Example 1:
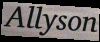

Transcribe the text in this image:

Allyson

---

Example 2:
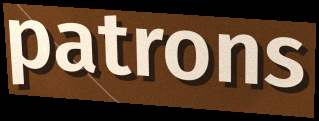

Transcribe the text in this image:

patrons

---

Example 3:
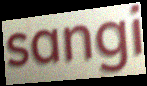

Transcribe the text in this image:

sangi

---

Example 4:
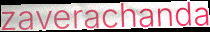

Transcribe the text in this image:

zaverachanda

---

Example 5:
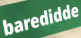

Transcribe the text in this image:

baredidde